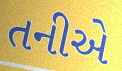
તનીએ